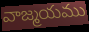
వాజ్మయము